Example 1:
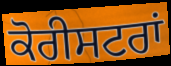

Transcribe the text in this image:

ਕੋਰੀਸਟਰਾਂ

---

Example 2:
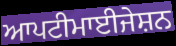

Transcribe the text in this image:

ਆਪਟੀਮਾਈਜੇਸ਼ਨ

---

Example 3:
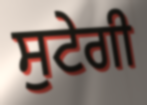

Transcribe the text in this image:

ਸੁਟੇਗੀ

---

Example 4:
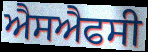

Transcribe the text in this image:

ਐਸਐਫਸੀ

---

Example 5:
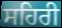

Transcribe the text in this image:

ਸਹਿਰੀ